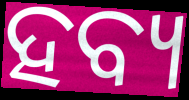
ହବ୍ୟ